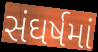
સંઘર્ષમાં